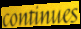
continues